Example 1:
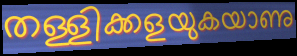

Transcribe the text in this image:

തള്ളിക്കളയുകയാണു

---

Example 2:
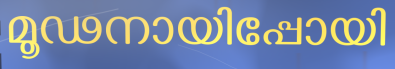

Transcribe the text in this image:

മൂഢനായിപ്പോയി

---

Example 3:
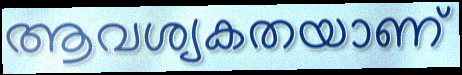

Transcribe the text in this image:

ആവശ്യകതയാണ്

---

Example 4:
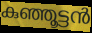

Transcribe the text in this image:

കുഞ്ഞൂട്ടൻ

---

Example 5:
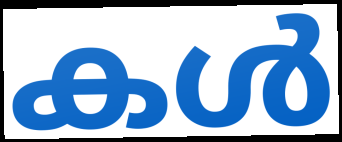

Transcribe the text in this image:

കൾ